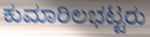
ಕುಮಾರಿಲಭಟ್ಟರು